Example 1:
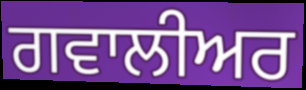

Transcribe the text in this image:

ਗਵਾਲੀਅਰ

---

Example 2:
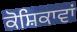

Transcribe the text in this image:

ਕੋਸ਼ਿਕਾਵਾਂ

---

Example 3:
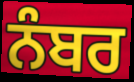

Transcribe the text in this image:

ਨੰਬਰ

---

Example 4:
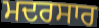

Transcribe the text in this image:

ਮਦਰਸਾਰ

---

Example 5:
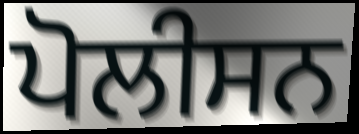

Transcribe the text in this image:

ਪੋਲੀਸਨ